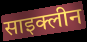
साइक्लीन